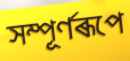
সম্পূৰ্ণৰূপে